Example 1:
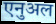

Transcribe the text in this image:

एनुअल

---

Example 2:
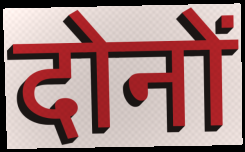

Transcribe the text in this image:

दोनों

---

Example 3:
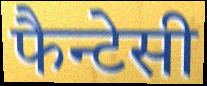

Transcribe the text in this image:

फैन्टेसी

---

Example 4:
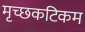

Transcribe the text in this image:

मृच्छकटिकम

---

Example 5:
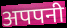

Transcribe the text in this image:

अपपनी